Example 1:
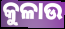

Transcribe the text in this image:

କୁଳାଉ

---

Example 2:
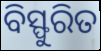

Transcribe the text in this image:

ବିସ୍ଫୁରିତ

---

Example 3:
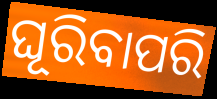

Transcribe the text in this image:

ଘୂରିବାପରି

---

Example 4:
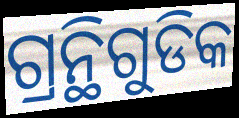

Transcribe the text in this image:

ଗ୍ରନ୍ଥିଗୁଡିକ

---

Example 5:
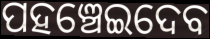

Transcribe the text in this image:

ପହଞ୍ଚେଇଦେବ